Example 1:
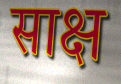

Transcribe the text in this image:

साक्ष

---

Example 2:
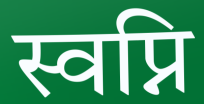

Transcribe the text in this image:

स्वप्नि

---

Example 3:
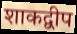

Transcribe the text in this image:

शाकद्वीप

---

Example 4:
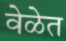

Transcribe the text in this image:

वेळेत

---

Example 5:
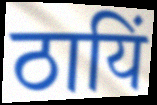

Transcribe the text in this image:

ठायिं